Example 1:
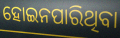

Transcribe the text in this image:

ହୋଇନପାରିଥିବା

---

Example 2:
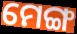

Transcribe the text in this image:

ମେଙ୍ଗ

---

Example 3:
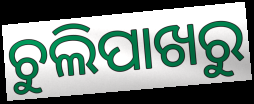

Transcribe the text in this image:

ଚୁଲିପାଖରୁ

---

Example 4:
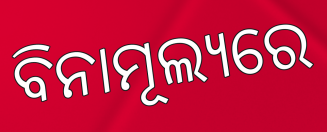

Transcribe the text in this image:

ବିନାମୂଲ୍ୟରେ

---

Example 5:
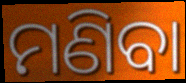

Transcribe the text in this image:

ମଣିବା